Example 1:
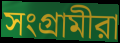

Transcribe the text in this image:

সংগ্রামীরা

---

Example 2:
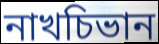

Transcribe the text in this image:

নাখচিভান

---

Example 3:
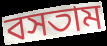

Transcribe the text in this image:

বসতাম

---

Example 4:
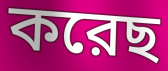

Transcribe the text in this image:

করেছ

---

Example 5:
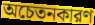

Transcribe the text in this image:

অচেতনকারণ